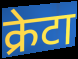
क्रेटा